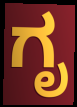
ಗೃ